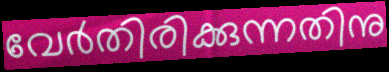
വേർതിരിക്കുന്നതിനു